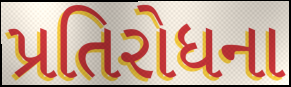
પ્રતિરોધના